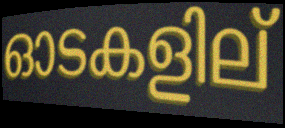
ഓടകളില്